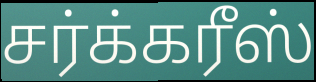
சர்க்கரீஸ்